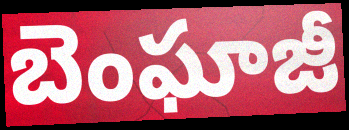
బెంఘాజీ